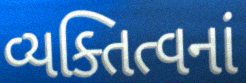
વ્યક્તિત્વનાં